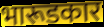
भारूडकार